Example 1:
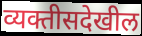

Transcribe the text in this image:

व्यक्तीसदेखील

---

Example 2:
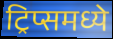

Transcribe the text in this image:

ट्रिप्समध्ये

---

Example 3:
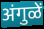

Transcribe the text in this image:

अंगुळें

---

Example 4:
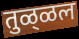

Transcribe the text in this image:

तुळ्‌ळल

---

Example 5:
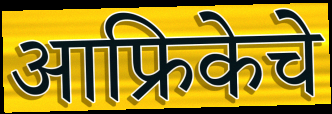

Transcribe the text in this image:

आफ्रिकेचे